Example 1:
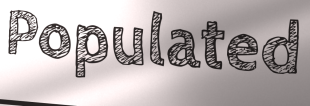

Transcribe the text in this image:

Populated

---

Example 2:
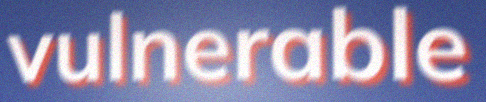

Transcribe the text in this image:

vulnerable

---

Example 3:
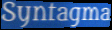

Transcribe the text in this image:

Syntagma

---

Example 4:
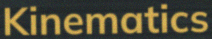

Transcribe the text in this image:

Kinematics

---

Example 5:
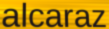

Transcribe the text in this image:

alcaraz